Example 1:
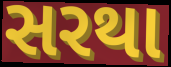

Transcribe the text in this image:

સરથા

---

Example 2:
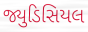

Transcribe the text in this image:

જ્યુડિસિયલ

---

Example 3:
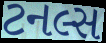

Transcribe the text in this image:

ટનલ્સ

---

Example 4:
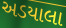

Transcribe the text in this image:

અડયાલા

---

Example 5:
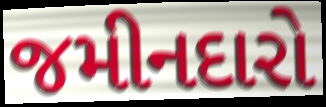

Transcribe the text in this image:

જમીનદારો